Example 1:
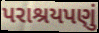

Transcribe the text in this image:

પરાશ્રયપણું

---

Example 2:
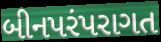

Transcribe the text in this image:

બીનપરંપરાગત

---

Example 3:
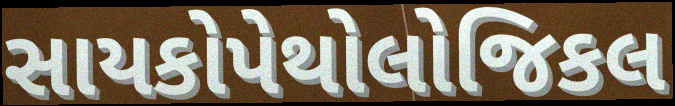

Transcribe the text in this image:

સાયકોપેથોલોજિકલ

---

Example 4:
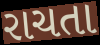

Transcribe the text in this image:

રાચતા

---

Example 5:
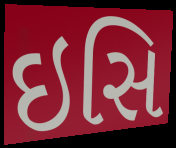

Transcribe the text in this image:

ઇસિ